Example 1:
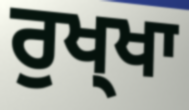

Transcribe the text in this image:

ਰੁਖ੍ਖਾ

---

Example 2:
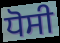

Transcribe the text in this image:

ਧੋਸੀ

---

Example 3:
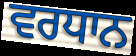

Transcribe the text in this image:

ਵਰਧਾਨ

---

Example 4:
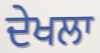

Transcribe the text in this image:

ਦੇਖਲਾ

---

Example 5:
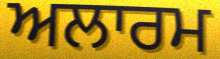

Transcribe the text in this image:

ਅਲਾਰਮ